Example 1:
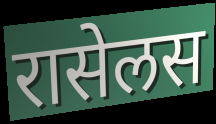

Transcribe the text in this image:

रासेलस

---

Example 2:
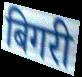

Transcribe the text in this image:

बिगरी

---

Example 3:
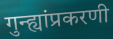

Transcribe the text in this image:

गुन्ह्यांप्रकरणी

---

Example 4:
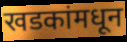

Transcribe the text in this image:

खडकांमधून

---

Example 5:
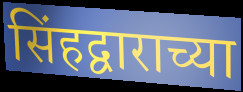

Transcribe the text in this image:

सिंहद्वाराच्या